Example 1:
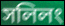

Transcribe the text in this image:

সলিলং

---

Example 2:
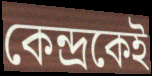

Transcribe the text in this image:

কেন্দ্রকেই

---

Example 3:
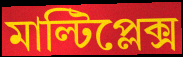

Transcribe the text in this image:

মাল্টিপ্লেক্স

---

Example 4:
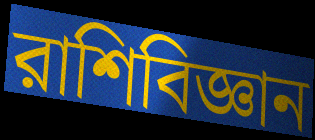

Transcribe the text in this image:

রাশিবিজ্ঞান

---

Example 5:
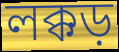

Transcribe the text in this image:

লক্কড়